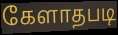
கேளாதபடி